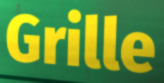
Grille